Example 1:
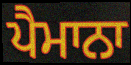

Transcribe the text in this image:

ਪੈਮਾਨਾ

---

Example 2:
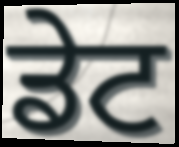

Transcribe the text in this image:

ਡੇਟ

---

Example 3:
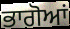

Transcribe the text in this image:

ਭਾਗੋਆਂ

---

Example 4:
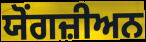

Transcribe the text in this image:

ਯੋਂਗਜ਼ੀਅਨ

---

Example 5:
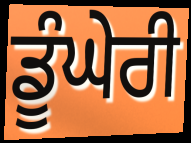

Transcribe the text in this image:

ਡੂੰਘੇਰੀ